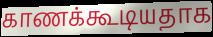
காணக்கூடியதாக